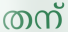
തന്